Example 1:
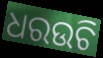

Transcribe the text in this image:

ଧରଉଚି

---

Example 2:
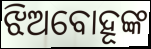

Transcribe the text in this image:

ଝିଅବୋହୂଙ୍କ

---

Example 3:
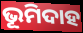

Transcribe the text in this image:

ଭୂମିଦାହ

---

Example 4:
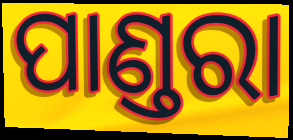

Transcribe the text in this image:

ପାଣ୍ଡରା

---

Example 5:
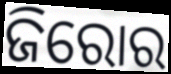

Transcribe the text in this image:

ଜିରୋର